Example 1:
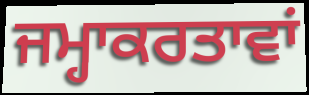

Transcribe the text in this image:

ਜਮ੍ਹਾਕਰਤਾਵਾਂ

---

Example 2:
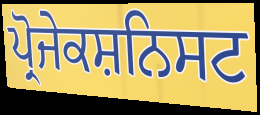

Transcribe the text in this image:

ਪ੍ਰੋਜੇਕਸ਼ਨਿਸਟ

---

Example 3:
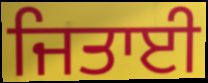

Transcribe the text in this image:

ਜਿਤਾਈ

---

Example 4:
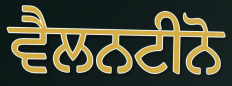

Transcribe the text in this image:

ਵੈਲਨਟੀਨੋ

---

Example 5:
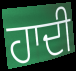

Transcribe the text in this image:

ਹਾਦੀ